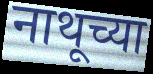
नाथूच्या